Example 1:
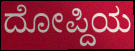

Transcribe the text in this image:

ದೋಪ್ದಿಯ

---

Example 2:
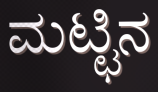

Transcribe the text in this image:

ಮಟ್ಟಿನ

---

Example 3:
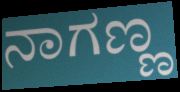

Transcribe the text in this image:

ನಾಗಣ್ಣ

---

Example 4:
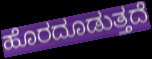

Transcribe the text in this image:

ಹೊರದೂಡುತ್ತದೆ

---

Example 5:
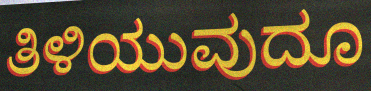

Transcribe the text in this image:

ತಿಳಿಯುವುದೂ